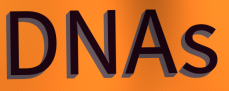
DNAs